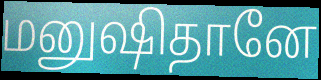
மனுஷிதானே